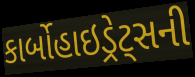
કાર્બોહાઇડ્રેટ્સની